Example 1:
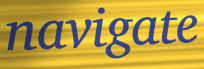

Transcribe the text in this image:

navigate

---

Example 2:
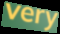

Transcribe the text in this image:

very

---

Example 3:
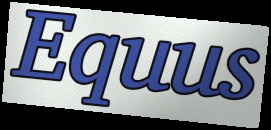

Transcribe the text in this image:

Equus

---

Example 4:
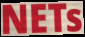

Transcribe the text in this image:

NETs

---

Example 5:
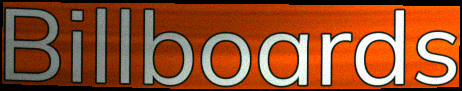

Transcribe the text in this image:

Billboards